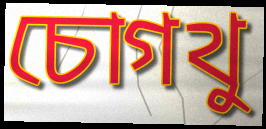
চোগথু